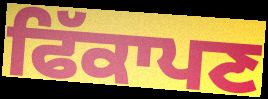
ਫਿੱਕਾਪਣ